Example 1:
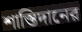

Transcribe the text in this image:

শাস্তিদানের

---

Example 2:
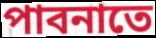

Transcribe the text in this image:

পাবনাতে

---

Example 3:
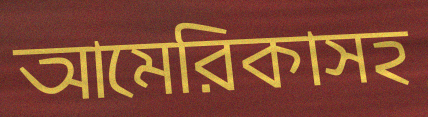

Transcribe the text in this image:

আমেরিকাসহ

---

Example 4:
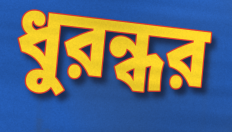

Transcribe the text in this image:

ধুরন্ধর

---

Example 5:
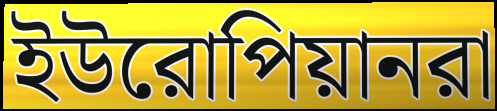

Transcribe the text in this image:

ইউরোপিয়ানরা